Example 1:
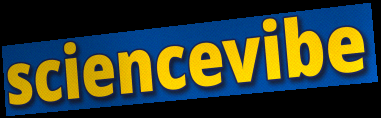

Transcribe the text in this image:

sciencevibe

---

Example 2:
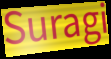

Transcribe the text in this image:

Suragi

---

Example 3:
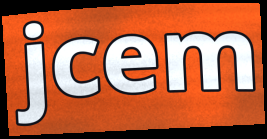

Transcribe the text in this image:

jcem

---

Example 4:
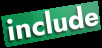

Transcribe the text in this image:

include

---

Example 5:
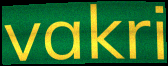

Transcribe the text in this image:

vakri